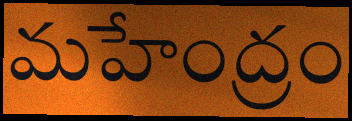
మహేంద్రం